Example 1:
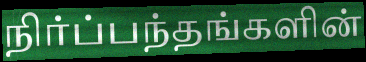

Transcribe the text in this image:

நிர்ப்பந்தங்களின்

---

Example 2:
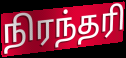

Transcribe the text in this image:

நிரந்தரி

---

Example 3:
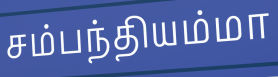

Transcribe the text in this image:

சம்பந்தியம்மா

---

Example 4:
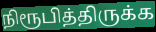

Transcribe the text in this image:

நிரூபித்திருக்க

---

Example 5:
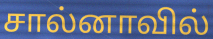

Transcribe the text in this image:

சால்னாவில்